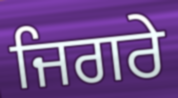
ਜਿਗਰੇ